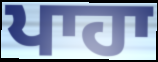
ਪਾਹਾ